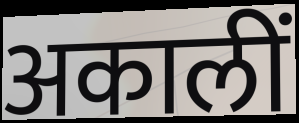
अकालीं